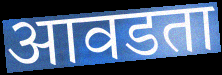
आवडता